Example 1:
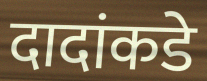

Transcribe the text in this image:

दादांकडे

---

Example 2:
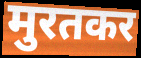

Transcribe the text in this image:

मुरतकर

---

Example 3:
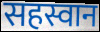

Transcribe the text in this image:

सहस्वान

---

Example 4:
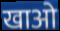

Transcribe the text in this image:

खाओ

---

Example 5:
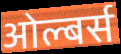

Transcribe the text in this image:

ओल्बर्स